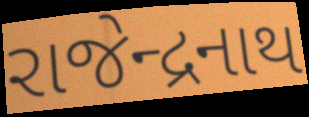
રાજેન્દ્રનાથ